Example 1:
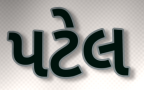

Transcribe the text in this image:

પટેલ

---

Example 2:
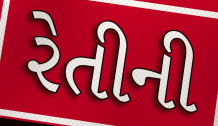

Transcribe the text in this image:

રેતીની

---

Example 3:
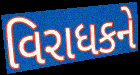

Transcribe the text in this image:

વિરાધકને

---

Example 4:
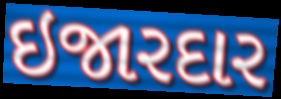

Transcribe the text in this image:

ઇજારદાર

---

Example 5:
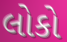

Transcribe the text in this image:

લોકો